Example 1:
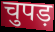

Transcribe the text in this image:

चुपड़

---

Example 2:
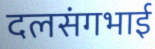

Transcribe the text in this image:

दलसंगभाई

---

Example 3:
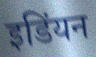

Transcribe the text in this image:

इडिंयन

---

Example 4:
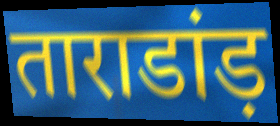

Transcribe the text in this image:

ताराडांड़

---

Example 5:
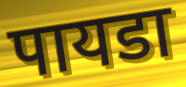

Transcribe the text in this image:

पायडा